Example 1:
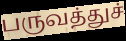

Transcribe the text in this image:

பருவத்துச்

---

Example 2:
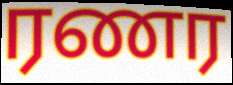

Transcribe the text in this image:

ரணர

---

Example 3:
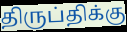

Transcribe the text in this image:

திருப்திக்கு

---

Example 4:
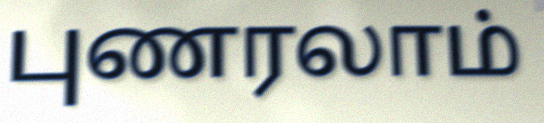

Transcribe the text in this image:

புணரலாம்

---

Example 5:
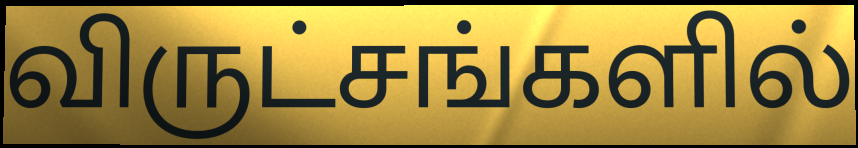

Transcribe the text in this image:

விருட்சங்களில்